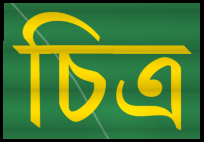
চিত্ৰ